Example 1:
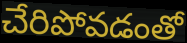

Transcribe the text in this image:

చేరిపోవడంతో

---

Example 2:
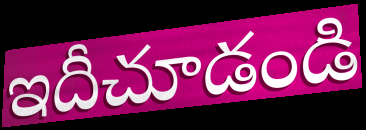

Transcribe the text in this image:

ఇదీచూడండి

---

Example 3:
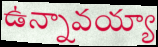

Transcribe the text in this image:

ఉన్నావయ్యా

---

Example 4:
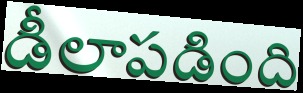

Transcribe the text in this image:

డీలాపడింది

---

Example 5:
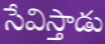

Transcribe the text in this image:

సేవిస్తాడు